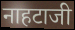
नाहटाजी